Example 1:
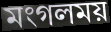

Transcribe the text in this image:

মংগলময়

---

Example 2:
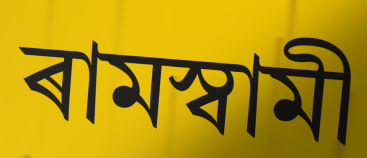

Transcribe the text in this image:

ৰামস্বামী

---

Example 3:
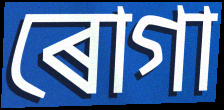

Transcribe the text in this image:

ৰোগা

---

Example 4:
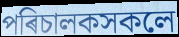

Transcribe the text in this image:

পৰিচালকসকলে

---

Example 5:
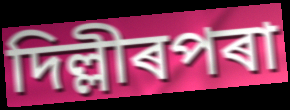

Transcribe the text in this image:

দিল্লীৰপৰা